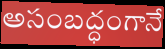
అసంబద్ధంగానే